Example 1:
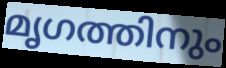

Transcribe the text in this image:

മൃഗത്തിനും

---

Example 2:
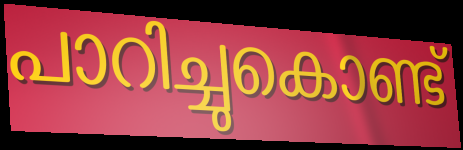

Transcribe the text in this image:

പാറിച്ചുകൊണ്ട്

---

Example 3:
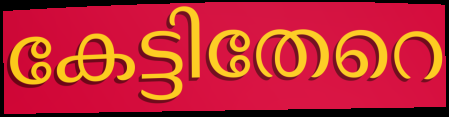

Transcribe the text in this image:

കേട്ടിതേറെ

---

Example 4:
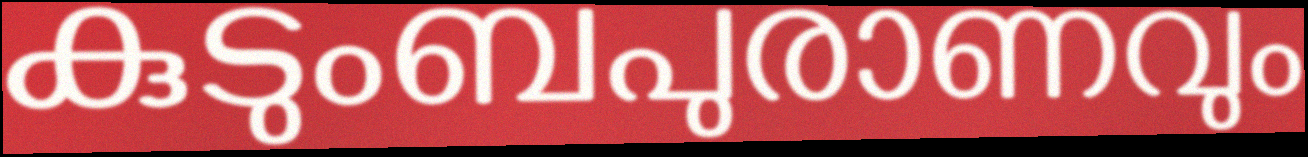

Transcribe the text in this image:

കുടുംബപുരാണവും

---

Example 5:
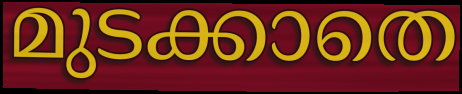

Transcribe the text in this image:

മുടക്കാതെ